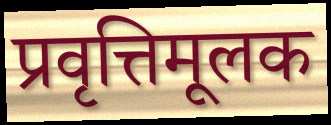
प्रवृत्तिमूलक